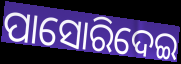
ପାସୋରିଦେଇ